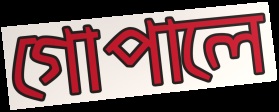
গোপালে